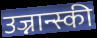
उज्नान्स्की